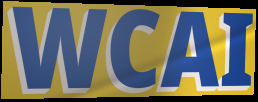
WCAI